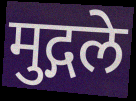
मुद्गले